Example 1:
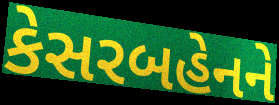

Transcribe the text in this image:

કેસરબહેનને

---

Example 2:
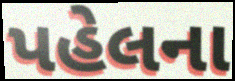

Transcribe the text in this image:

પહેલના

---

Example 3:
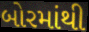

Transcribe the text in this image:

બોરમાંથી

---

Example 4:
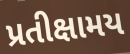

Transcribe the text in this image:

પ્રતીક્ષામય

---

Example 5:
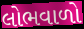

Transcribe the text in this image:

લોભવાળો